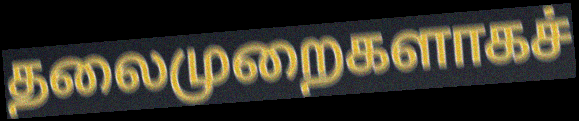
தலைமுறைகளாகச்